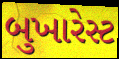
બુખારેસ્ટ